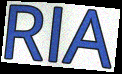
RIA